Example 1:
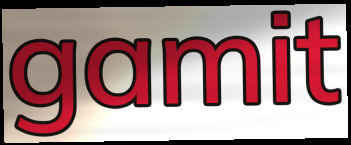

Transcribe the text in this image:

gamit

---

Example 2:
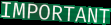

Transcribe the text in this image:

IMPORTANT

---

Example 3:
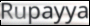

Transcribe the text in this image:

Rupayya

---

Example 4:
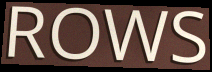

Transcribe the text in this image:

ROWS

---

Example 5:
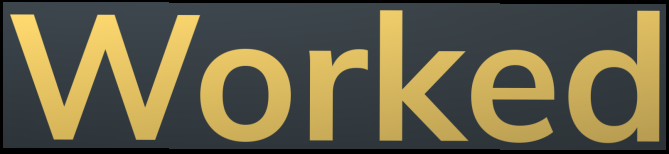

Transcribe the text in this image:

Worked